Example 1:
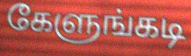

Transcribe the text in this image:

கேளுங்கடி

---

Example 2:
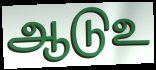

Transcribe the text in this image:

ஆடுஉ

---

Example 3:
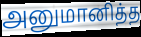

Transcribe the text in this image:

அனுமானித்த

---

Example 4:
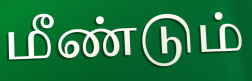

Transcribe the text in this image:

மீண்டும்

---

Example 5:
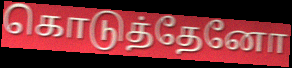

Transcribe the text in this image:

கொடுத்தேனோ